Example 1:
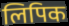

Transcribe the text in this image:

लिपिक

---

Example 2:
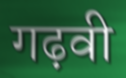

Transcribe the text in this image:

गढ़वी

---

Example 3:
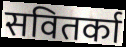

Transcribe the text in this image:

सवितर्का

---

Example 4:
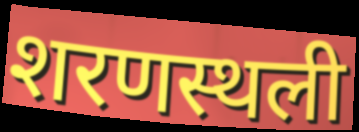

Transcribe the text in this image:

शरणस्थली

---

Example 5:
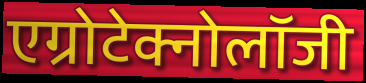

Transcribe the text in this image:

एग्रोटेक्नोलॉजी